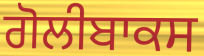
ਗੋਲੀਬਾਕਸ